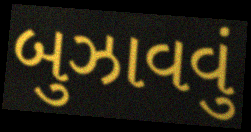
બુઝાવવું